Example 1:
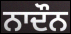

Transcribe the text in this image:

ਨਾਦੌਨ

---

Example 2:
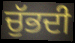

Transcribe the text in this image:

ਚੁੱਭਦੀ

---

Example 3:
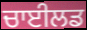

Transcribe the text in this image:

ਚਾਈਲਡ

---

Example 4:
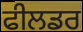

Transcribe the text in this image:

ਫੀਲਡਰ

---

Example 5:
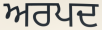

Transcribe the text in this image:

ਅਰਪਦ